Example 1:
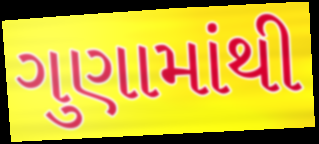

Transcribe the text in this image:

ગુણામાંથી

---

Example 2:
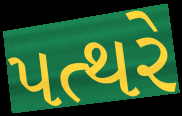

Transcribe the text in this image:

પત્થરે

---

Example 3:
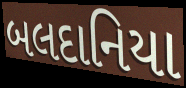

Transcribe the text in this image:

બલદાનિયા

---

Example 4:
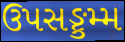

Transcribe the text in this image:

ઉપસઙ્કમ્મ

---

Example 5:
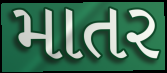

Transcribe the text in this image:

માતર